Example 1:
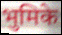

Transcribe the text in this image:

भुमिके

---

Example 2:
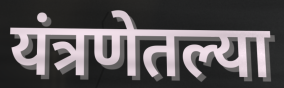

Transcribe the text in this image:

यंत्रणेतल्या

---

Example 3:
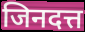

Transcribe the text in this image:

जिनदत्त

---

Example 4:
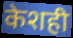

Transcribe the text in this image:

केशही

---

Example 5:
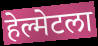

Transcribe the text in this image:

हेल्मेटला